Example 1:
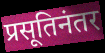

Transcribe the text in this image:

प्रसूतिनंतर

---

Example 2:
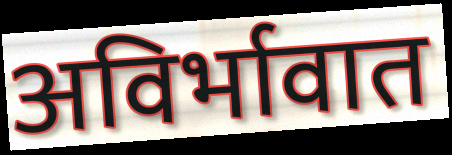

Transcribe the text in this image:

अविर्भावात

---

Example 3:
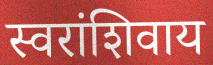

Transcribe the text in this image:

स्वरांशिवाय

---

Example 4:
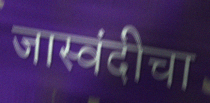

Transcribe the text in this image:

जास्वंदीचा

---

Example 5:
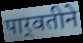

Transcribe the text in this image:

पार्वतीने